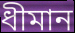
ধীমান